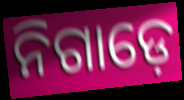
ନିଗାଡ଼େ